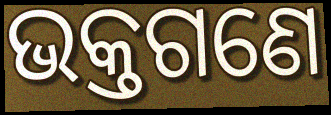
ଭକ୍ତଗଣେ